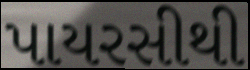
પાયરસીથી